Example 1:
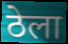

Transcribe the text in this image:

ठेला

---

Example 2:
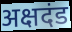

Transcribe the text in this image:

अक्षदंड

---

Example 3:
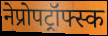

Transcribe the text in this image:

नेप्रोपट्रॉफ्स्क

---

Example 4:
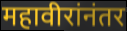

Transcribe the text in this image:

महावीरांनंतर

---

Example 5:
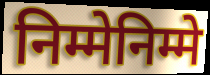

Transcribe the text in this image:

निम्मेनिम्मे